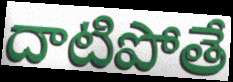
దాటిపోతే